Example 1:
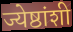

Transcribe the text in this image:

ज्येष्ठांशी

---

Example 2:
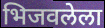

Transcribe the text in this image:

भिजवलेला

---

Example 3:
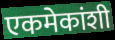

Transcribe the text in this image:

एकमेकांशी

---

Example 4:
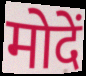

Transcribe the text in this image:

मोदें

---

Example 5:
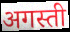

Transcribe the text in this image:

अगस्ती